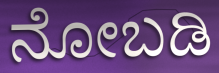
ನೋಬಡಿ